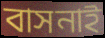
বাসনাই